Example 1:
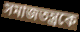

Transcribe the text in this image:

সমাজতন্ত্রকে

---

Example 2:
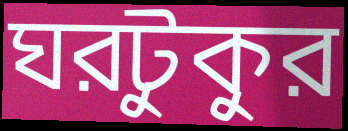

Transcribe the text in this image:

ঘরটুকুর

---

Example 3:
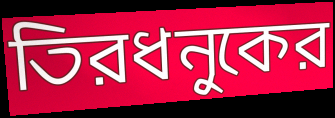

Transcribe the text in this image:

তিরধনুকের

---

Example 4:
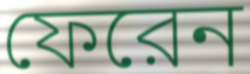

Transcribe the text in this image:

ফেরেন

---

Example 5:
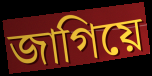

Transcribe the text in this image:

জাগিয়ে